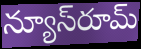
న్యూస్‌రూమ్